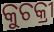
କୁଚକ୍ରୀ